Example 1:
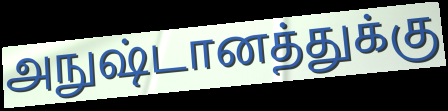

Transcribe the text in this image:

அநுஷ்டானத்துக்கு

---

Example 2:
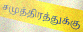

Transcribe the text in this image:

சமுத்திரத்துக்கு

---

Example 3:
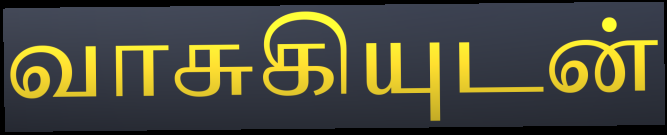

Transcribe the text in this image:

வாசுகியுடன்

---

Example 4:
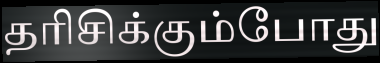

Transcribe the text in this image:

தரிசிக்கும்போது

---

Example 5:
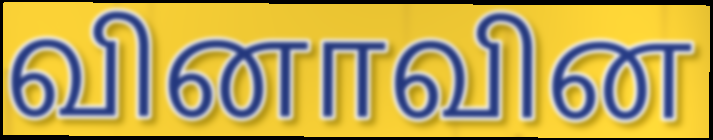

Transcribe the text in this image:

வினாவின